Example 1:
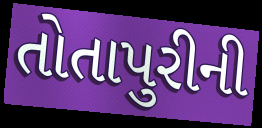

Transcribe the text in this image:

તોતાપુરીની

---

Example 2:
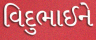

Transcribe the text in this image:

વિદુભાઈને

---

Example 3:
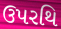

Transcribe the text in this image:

ઉપરથિ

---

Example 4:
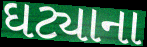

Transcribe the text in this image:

ઘટ્યાના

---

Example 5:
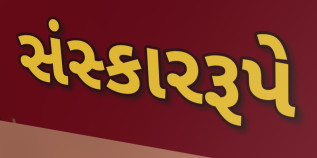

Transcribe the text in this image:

સંસ્કારરૂપે